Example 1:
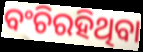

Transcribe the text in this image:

ବଂଚିରହିଥିବା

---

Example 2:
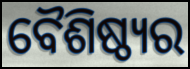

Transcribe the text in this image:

ବୈଶିଷ୍ଠ୍ୟର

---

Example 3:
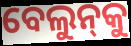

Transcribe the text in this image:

ବେଲୁନ୍‌କୁ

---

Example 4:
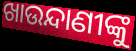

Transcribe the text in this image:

ଖାଉନ୍ଦାଣୀଙ୍କୁ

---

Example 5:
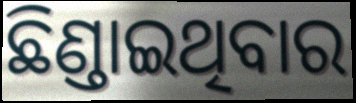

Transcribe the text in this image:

ଛିଣ୍ଡାଇଥିବାର